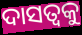
ଦାସତ୍ୱକୁ